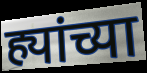
ह्यांच्या